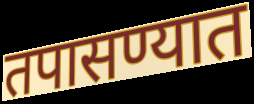
तपासण्यात